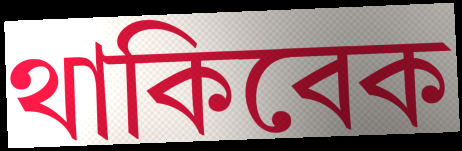
থাকিবেক